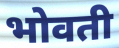
भोवती